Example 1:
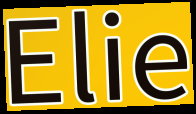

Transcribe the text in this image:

Elie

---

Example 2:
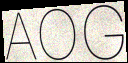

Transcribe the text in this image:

AOG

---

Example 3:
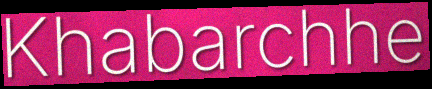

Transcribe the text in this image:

Khabarchhe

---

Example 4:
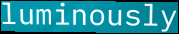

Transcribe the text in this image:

luminously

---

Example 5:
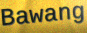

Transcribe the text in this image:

Bawang